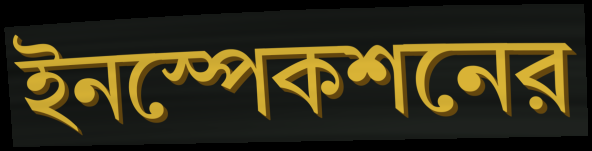
ইনস্পেকশনের